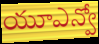
యూఎన్వో